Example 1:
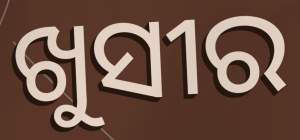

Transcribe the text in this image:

ଖୁସୀର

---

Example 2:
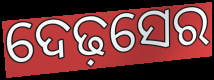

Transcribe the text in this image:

ଦେଢ଼ସେର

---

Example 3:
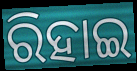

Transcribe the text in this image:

ରିହାଇ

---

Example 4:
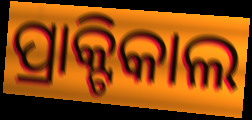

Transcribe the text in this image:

ପ୍ରାକ୍ଟିକାଲ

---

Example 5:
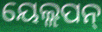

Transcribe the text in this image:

ୟେଲ୍ଲପନ୍